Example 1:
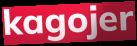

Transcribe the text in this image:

kagojer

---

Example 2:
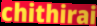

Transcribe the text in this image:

chithirai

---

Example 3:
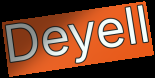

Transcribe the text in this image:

Deyell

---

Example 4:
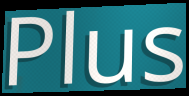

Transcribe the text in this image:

Plus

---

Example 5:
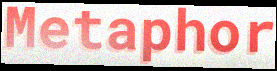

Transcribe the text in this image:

Metaphor